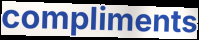
compliments